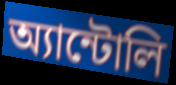
অ্যান্টোলি